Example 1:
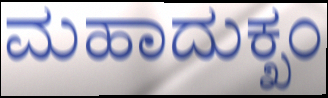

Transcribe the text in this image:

ಮಹಾದುಕ್ಖಂ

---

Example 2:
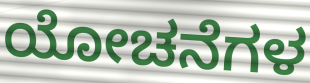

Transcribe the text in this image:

ಯೋಚನೆಗಳ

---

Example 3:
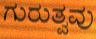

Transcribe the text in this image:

ಗುರುತ್ವವು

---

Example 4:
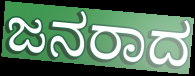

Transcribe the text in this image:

ಜನರಾದ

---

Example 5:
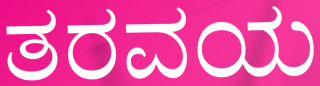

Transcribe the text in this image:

ತರವಯ